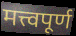
मत्त्वपूर्ण